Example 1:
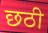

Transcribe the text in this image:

छठी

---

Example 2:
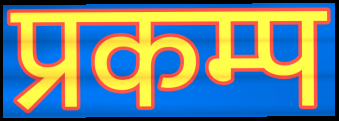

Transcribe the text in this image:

प्रकम्प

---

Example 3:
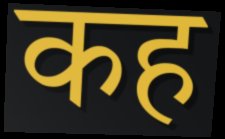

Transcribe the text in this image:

कह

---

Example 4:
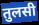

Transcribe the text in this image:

तुलसी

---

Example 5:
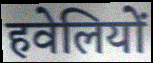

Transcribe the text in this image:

हवेलियों